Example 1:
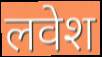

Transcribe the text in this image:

लवेश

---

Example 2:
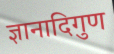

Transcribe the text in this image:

ज्ञानादिगुण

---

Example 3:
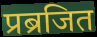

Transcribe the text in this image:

प्रब्रजित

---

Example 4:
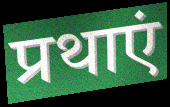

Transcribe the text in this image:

प्रथाएं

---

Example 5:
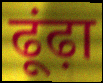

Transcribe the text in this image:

ढूंढ़ा